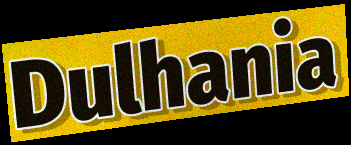
Dulhania